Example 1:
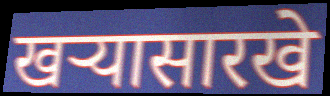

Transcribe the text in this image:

खऱ्यासारखे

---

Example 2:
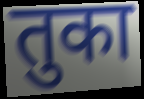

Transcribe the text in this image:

तुका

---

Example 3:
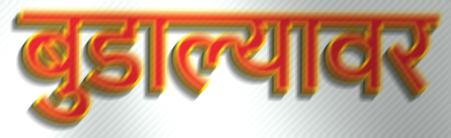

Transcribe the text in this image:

बुडाल्यावर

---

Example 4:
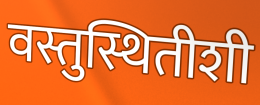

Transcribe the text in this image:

वस्तुस्थितीशी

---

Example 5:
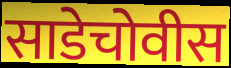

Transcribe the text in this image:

साडेचोवीस